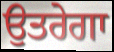
ਉਤਰੇਗਾ